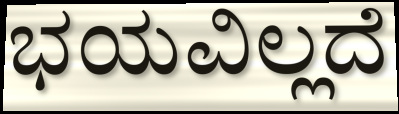
ಭಯವಿಲ್ಲದೆ